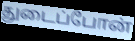
துடைப்போன்